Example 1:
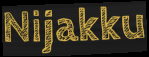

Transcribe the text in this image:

Nijakku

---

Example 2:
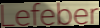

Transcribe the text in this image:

Lefeber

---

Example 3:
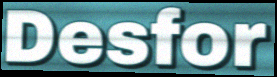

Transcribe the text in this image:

Desfor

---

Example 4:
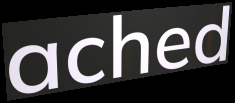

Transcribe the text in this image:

ached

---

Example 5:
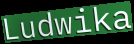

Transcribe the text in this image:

Ludwika